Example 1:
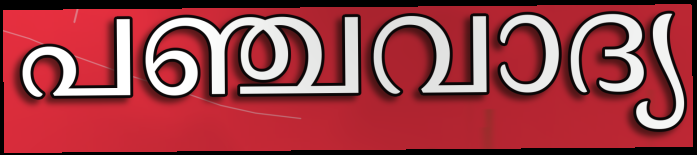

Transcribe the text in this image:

പഞ്ചവാദ്യ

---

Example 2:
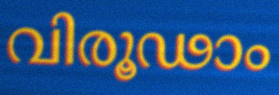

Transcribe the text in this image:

വിരൂഢാം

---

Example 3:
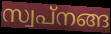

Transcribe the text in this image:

സ്വപ്നങ്ങ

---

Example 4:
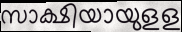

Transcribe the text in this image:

സാക്ഷിയായുളള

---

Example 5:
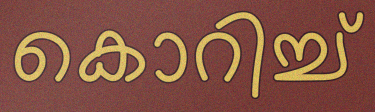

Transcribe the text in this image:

കൊറിച്ച്